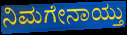
ನಿಮಗೇನಾಯ್ತು